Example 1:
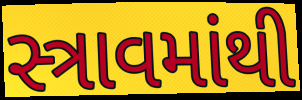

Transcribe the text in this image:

સ્ત્રાવમાંથી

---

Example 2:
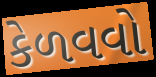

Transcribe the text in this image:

કેળવવો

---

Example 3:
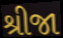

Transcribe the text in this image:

શ્રીજા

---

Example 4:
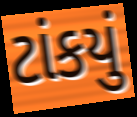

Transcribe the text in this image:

ટાંકયું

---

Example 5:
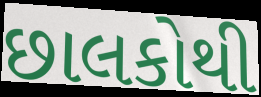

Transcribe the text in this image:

છાલકોથી